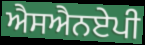
ਐਸਐਨਏਪੀ